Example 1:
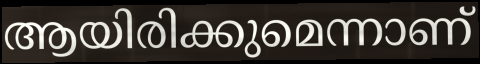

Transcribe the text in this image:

ആയിരിക്കുമെന്നാണ്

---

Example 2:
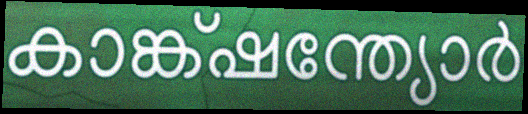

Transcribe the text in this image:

കാങ്ക്ഷന്ത്യോർ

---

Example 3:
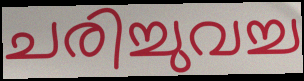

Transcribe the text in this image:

ചരിച്ചുവച്ച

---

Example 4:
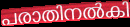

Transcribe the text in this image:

പരാതിനൽകി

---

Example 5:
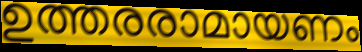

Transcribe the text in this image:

ഉത്തരരാമായണം